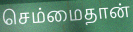
செம்மைதான்